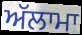
ਅੱਲਾਮਾ